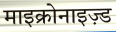
माइक्रोनाइज़्ड